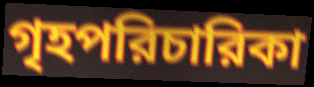
গৃহপরিচারিকা